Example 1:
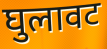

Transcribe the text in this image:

घुलावट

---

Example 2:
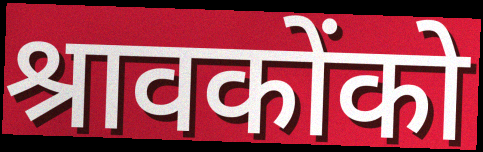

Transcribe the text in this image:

श्रावकोंको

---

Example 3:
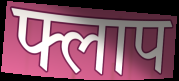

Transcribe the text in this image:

फ्लाप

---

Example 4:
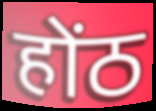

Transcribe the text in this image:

होंठ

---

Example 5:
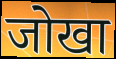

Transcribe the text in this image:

जोखा